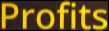
Profits